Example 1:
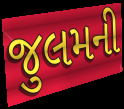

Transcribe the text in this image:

જુલમની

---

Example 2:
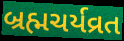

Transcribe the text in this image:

બ્રહ્મચર્યવ્રત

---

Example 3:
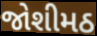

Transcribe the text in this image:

જોશીમઠ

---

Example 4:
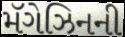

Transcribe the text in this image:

મૅગેઝિનની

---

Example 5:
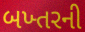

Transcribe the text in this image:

બખ્તરની